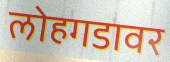
लोहगडावर